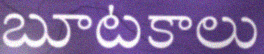
బూటకాలు